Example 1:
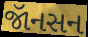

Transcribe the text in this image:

જૉનસન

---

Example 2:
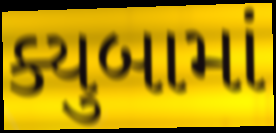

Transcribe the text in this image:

ક્યુબામાં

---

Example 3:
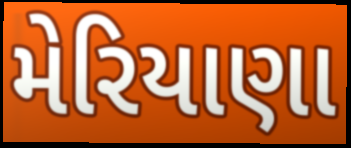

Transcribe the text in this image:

મેરિયાણા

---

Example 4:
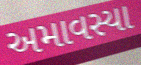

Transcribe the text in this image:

અમાવસ્યા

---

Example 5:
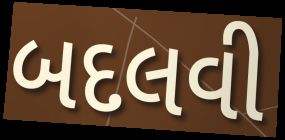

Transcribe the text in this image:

બદલવી